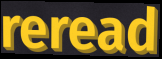
reread